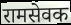
रामसेवक